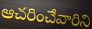
ఆచరించేవారిని